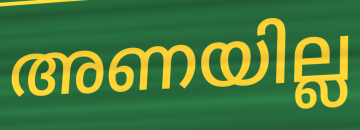
അണയില്ല